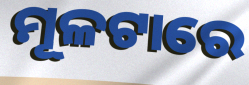
ମୂଳଟାରେ